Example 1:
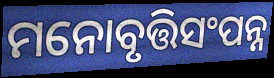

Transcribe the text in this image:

ମନୋବୃତ୍ତିସଂପନ୍ନ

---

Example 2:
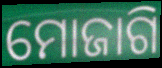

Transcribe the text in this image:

ମୋଜାଗି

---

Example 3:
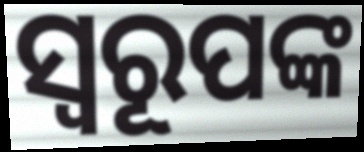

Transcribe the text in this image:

ସ୍ୱରୂପଙ୍କ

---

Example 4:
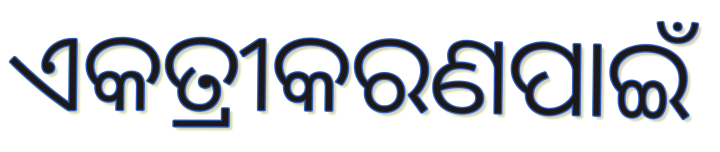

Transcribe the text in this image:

ଏକତ୍ରୀକରଣପାଇଁ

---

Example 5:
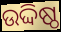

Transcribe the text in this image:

ଉଦ୍ଦିଷ୍ଠ